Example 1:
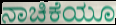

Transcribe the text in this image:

ನಾಚಿಕೆಯೂ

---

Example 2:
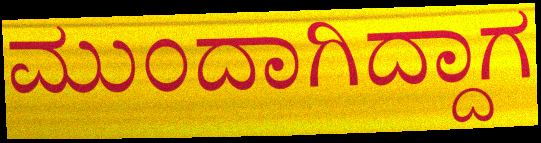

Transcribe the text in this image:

ಮುಂದಾಗಿದ್ದಾಗ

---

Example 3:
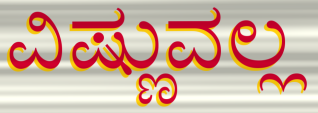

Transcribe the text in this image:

ವಿಷ್ಣುವಲ್ಲ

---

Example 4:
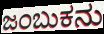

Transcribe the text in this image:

ಜಂಬುಕನು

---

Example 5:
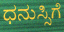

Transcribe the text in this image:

ಧನುಸ್ಸಿಗೆ